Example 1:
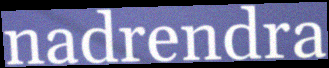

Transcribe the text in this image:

nadrendra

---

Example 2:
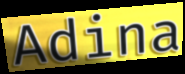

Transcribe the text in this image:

Adina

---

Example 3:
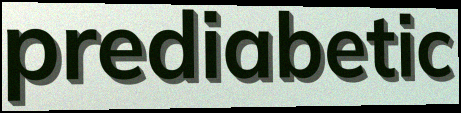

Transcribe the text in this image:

prediabetic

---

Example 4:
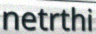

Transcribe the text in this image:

netrthi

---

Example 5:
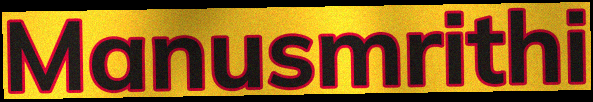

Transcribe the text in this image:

Manusmrithi